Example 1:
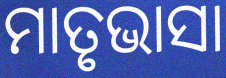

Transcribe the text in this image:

ମାତୃଭାସା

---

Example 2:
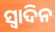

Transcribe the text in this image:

ସ୍ବାଦିନ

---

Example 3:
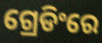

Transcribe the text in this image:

ଗ୍ରେଡିଂରେ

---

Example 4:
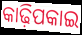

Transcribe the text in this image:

କାଢ଼ିପକାଇ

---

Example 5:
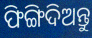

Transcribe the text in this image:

ଫିଙ୍ଗିଦିଅନ୍ତୁ